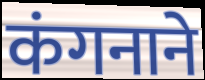
कंगनाने